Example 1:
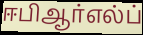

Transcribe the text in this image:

ஈபிஆர்எல்ப்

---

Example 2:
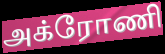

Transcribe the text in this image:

அக்ரோணி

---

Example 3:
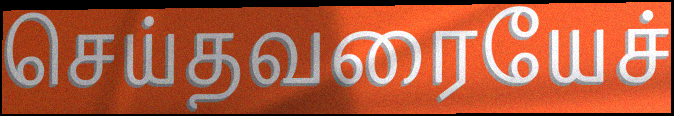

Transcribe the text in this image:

செய்தவரையேச்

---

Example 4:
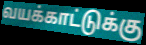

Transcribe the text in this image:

வயக்காட்டுக்கு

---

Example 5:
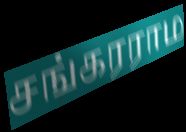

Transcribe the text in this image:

சங்கரராம